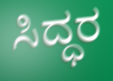
ಸಿದ್ಧರ